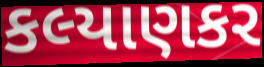
કલ્યાણકર